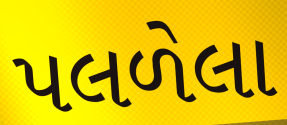
પલળેલા